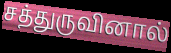
சத்துருவினால்